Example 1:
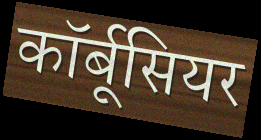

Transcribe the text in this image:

कॉर्बूसियर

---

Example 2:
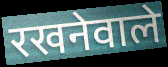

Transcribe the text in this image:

रखनेवाले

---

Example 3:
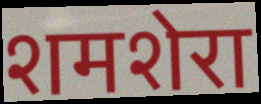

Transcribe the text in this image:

शमशेरा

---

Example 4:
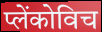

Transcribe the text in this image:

प्लेंकोविच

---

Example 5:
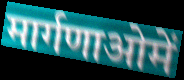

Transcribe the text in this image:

मार्गणाओमें